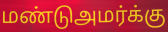
மண்டுஅமர்க்கு